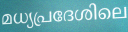
മധ്യപ്രദേശിലെ